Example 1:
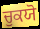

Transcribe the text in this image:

ਚੁਕਯੋ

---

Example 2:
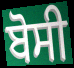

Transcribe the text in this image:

ਬੋਸੀ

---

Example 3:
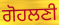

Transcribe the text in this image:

ਗੋਹਲਣੀ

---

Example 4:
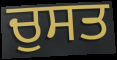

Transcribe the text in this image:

ਚੁਸਤ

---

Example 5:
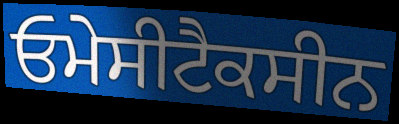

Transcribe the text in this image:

ਓਮੇਸੀਟੈਕਸੀਨ